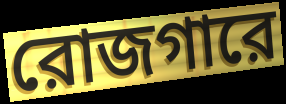
রোজগারে